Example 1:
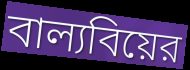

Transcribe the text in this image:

বাল্যবিয়ের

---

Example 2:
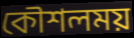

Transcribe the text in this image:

কৌশলময়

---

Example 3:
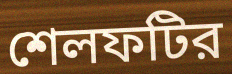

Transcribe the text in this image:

শেলফটির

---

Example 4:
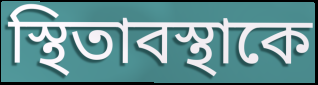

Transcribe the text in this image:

স্থিতাবস্থাকে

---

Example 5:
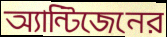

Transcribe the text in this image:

অ্যান্টিজেনের